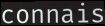
connais